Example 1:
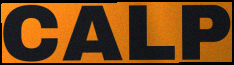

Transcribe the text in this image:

CALP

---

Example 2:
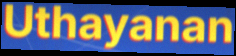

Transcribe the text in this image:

Uthayanan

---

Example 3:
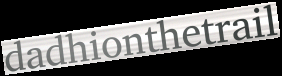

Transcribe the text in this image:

dadhionthetrail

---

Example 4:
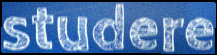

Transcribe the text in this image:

studere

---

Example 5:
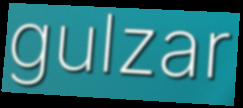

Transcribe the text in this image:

gulzar